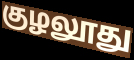
குழலூது